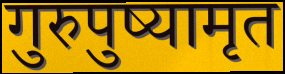
गुरुपुष्यामृत